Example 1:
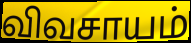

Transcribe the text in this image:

விவசாயம்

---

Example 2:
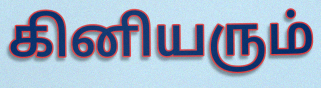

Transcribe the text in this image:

கினியரும்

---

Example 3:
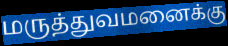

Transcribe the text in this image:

மருத்துவமனைக்கு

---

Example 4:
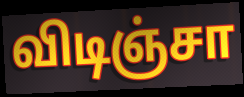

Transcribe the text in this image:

விடிஞ்சா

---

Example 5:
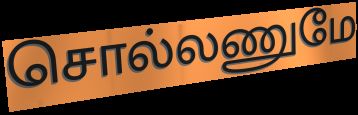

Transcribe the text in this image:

சொல்லணுமே